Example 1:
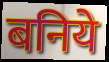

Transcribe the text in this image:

बनिये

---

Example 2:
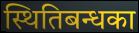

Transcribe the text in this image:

स्थितिबन्धका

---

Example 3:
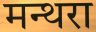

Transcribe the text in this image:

मन्थरा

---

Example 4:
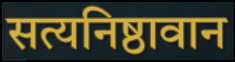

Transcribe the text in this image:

सत्यनिष्ठावान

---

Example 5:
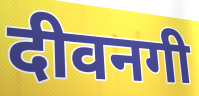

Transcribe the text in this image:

दीवनगी